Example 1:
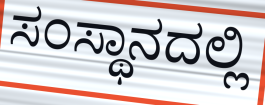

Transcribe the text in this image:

ಸಂಸ್ಥಾನದಲ್ಲಿ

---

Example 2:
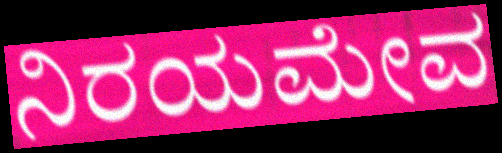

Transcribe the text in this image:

ನಿರಯಮೇವ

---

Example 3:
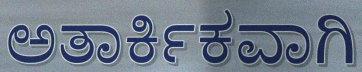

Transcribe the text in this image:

ಅತಾರ್ಕಿಕವಾಗಿ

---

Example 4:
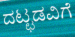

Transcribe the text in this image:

ದಟ್ಟಡವಿಗೆ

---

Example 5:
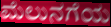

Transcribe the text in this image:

ಮೆಲುನಗೆಯ